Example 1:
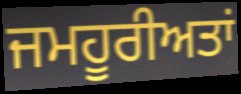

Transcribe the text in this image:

ਜਮਹੂਰੀਅਤਾਂ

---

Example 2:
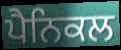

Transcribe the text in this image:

ਪੈਨਿਕਲ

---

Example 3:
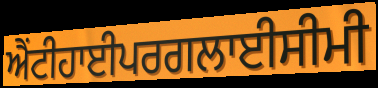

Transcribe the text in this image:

ਐਂਟੀਹਾਈਪਰਗਲਾਈਸੀਮੀ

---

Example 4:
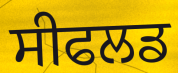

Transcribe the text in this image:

ਸੀਫਲਡ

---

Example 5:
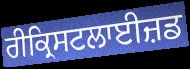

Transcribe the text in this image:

ਰੀਕ੍ਰਿਸਟਲਾਈਜ਼ਡ